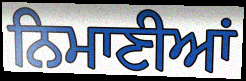
ਨਿਮਾਣੀਆਂ